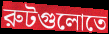
রুটগুলোতে